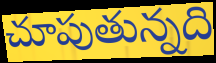
చూపుతున్నది